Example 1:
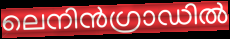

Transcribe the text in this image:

ലെനിൻഗ്രാഡിൽ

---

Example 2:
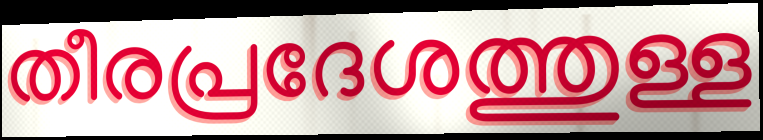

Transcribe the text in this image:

തീരപ്രദേശത്തുള്ള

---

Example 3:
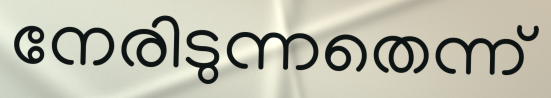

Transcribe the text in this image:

നേരിടുന്നതെന്ന്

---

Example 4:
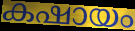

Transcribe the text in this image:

കഷായം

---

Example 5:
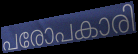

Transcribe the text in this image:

പരോപകാരി